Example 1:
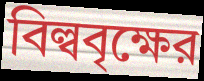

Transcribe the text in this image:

বিল্ববৃক্ষের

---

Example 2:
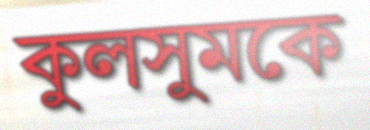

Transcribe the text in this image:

কুলসুমকে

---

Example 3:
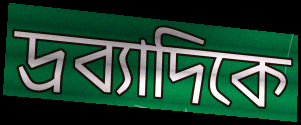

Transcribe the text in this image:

দ্রব্যাদিকে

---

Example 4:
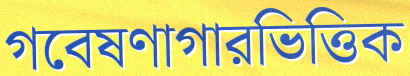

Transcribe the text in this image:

গবেষণাগারভিত্তিক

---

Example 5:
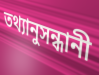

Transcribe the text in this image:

তথ্যানুসন্ধানী